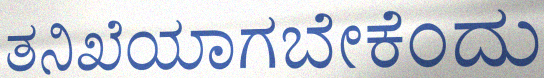
ತನಿಖೆಯಾಗಬೇಕೆಂದು